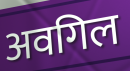
अवगिल